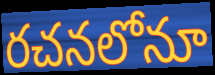
రచనలోనూ